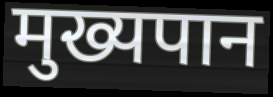
मुख्यपान